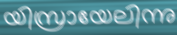
യിസ്രായേലിന്നു